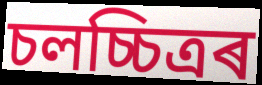
চলচ্চিত্ৰৰ